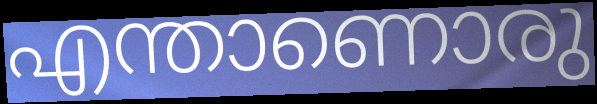
എന്താണൊരു